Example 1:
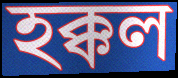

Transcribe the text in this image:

হক্কল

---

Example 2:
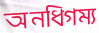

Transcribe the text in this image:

অনধিগম্য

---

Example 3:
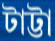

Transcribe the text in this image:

টাট্টা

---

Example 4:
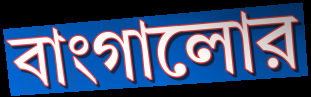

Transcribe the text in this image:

বাংগালোর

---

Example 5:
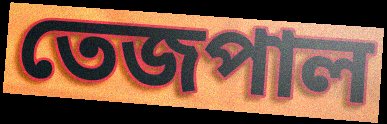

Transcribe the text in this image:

তেজপাল